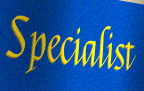
Specialist